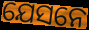
ଯେସନେ